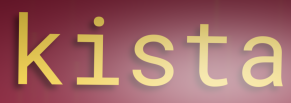
kista